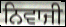
ਨਿਵਾਜੀ